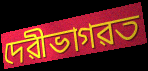
দেৱীভাগৱত